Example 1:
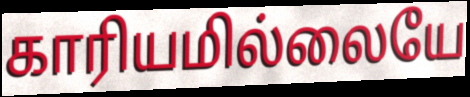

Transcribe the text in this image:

காரியமில்லையே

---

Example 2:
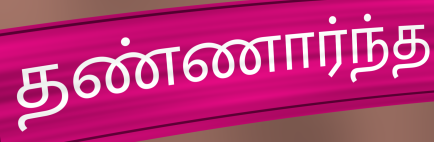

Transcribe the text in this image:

தண்ணார்ந்த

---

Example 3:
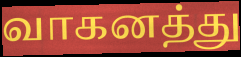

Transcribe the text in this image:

வாகனத்து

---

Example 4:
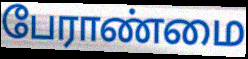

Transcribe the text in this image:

பேராண்மை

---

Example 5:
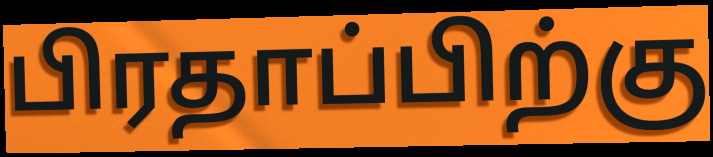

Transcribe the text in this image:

பிரதாப்பிற்கு